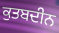
ਕੁਤਬਦੀਨ